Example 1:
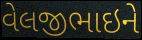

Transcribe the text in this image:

વેલજીભાઇને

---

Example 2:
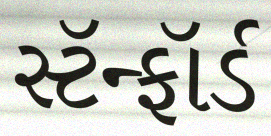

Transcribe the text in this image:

સ્ટૅન્ફૉર્ડ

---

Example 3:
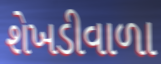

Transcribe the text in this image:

શેખડીવાળા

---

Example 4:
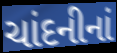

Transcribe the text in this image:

ચાંદનીનાં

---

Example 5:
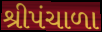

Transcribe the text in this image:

શ્રીપંચાળા